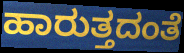
ಹಾರುತ್ತದಂತೆ